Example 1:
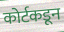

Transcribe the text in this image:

कोर्टकडून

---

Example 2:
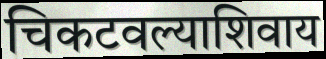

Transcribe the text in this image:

चिकटवल्याशिवाय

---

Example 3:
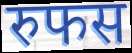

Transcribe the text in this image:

रुफस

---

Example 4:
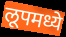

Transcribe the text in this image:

लूपमध्ये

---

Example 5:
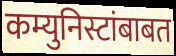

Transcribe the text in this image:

कम्युनिस्टांबाबत